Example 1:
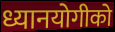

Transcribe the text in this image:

ध्यानयोगीको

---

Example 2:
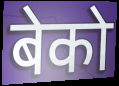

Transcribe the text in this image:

बेको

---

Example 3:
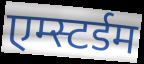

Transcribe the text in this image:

एम्स्टर्डम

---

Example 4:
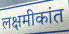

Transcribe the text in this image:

लक्षमीकांत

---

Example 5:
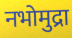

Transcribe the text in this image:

नभोमुद्रा